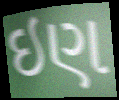
ઇણ